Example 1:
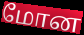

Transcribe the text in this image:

மோன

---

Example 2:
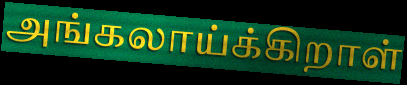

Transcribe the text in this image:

அங்கலாய்க்கிறாள்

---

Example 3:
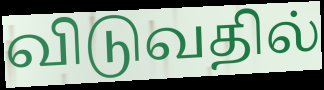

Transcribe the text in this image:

விடுவதில்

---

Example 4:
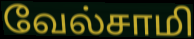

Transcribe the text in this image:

வேல்சாமி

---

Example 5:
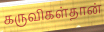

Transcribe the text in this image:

கருவிகள்தான்